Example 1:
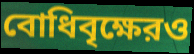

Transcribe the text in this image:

বোধিবৃক্ষেরও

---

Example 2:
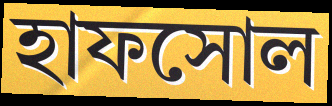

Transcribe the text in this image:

হাফসোল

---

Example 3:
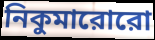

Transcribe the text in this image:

নিকুমারোরো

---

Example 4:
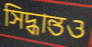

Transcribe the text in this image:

সিদ্ধান্তও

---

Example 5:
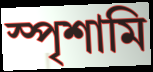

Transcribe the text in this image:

স্পৃশামি